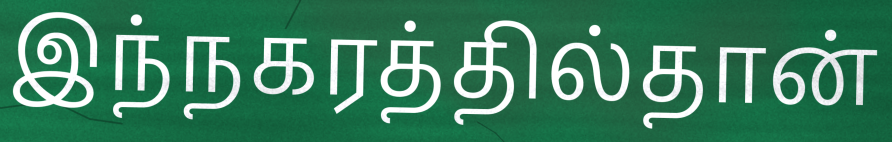
இந்நகரத்தில்தான்